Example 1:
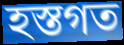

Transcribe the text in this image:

হস্তগত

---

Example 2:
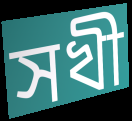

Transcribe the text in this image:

সখী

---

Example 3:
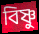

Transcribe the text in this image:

বিষ্ণু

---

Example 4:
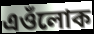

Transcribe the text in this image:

এওঁলোক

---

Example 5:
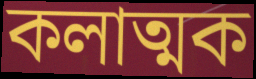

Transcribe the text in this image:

কলাত্মক